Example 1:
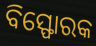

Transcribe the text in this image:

ବିସ୍ଫୋରକ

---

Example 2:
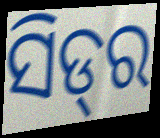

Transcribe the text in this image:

ସିଡ୍‌ର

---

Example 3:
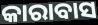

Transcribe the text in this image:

କାରାବାସ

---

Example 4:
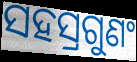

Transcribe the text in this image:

ସହସ୍ରଗୁଣଂ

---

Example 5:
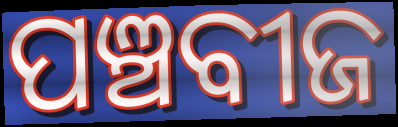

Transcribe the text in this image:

ପଞ୍ଚବୀଜ